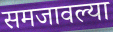
समजावल्या